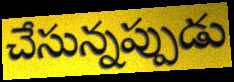
చేసున్నప్పుడు